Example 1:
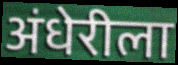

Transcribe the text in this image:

अंधेरीला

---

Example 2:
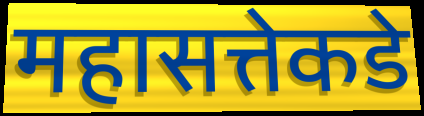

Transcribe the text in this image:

महासत्तेकडे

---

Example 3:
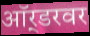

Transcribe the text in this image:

ऑर्डरवर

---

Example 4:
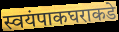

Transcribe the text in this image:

स्वयंपाकघराकडे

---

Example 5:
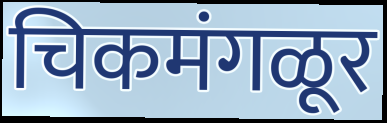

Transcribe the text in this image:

चिकमंगळूर